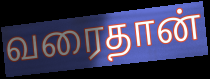
வரைதான்